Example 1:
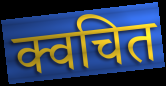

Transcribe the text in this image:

क्वचित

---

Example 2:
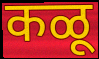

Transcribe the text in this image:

कळू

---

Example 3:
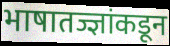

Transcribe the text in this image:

भाषातज्ज्ञांकडून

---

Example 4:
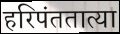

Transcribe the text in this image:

हरिपंततात्या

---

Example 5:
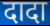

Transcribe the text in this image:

दादा